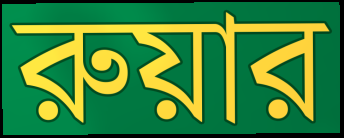
রুয়ার